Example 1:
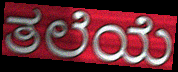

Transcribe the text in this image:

ತಲೆಯೆ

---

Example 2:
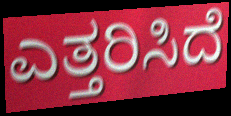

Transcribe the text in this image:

ಎತ್ತರಿಸಿದೆ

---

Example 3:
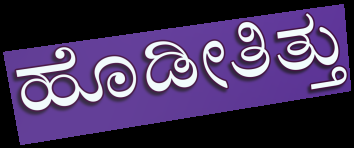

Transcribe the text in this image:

ಹೊಡೀತಿತ್ತು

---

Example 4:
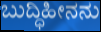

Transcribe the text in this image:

ಬುದ್ಧಿಹೀನನು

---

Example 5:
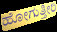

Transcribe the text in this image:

ಹೋಗುತ್ತೀರಿ